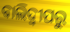
ବାଲିଦ୍ୱୀପରୁ